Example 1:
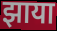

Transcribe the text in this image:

झाया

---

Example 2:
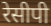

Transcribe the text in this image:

रेसीपी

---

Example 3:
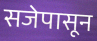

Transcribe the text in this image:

सजेपासून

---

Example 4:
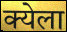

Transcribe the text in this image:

क्येला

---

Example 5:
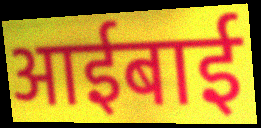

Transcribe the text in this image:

आईबाई